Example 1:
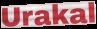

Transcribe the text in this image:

Urakal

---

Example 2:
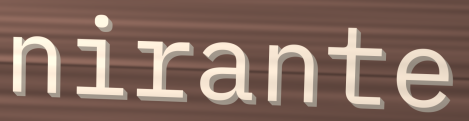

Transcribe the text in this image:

nirante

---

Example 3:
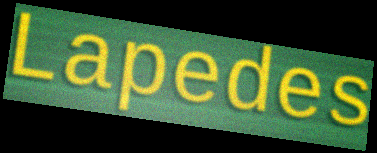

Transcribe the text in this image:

Lapedes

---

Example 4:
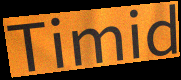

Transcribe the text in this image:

Timid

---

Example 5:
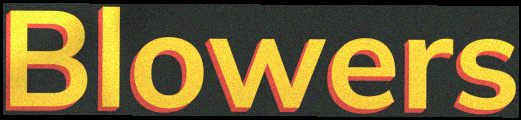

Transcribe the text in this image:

Blowers